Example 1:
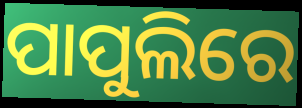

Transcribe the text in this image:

ପାପୁଲିରେ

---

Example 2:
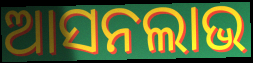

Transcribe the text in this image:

ଆସନଲାଭ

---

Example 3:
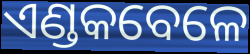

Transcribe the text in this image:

ଏଣ୍ଡକବେଳେ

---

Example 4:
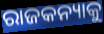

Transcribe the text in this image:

ରାଜକନ୍ୟାକୁ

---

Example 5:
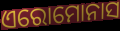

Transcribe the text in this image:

ଏରୋମୋନାସ